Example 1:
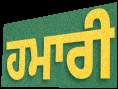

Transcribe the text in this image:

ਹਮਾਰੀ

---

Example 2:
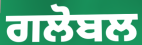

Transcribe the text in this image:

ਗਲੋਬਲ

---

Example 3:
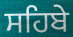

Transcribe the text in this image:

ਸਹਿਬੇ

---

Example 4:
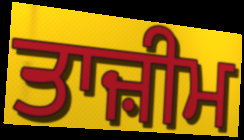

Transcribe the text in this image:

ਤਾਜ਼ੀਮ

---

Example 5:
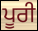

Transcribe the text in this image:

ਪੂਰੀ